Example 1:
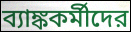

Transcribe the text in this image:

ব্যাঙ্ককর্মীদের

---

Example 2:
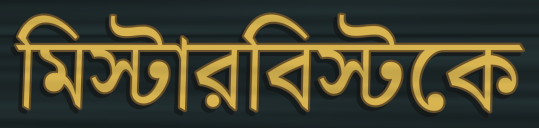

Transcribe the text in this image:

মিস্টারবিস্টকে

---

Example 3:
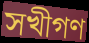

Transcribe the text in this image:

সখীগণ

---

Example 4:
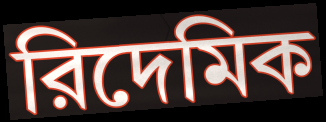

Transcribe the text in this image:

রিদেমিক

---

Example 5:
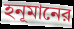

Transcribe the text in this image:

হনূমানের